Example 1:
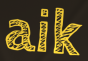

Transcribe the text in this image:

aik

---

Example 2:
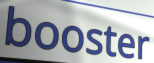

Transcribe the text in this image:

booster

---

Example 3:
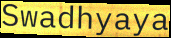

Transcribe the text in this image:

Swadhyaya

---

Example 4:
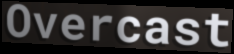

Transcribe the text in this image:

Overcast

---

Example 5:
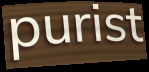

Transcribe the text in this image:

purist